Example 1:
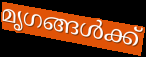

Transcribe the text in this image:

മൃഗങ്ങൾക്ക്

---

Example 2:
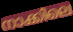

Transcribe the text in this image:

നാക്കിലെ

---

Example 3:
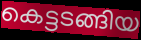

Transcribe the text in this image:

കെട്ടടങ്ങിയ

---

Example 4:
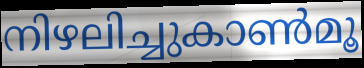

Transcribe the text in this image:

നിഴലിച്ചുകാൺമൂ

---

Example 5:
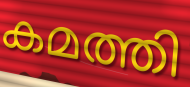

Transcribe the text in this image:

കമത്തി